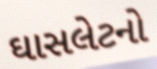
ઘાસલેટનો